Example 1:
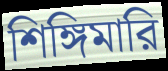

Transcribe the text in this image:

শিঙ্গিমারি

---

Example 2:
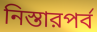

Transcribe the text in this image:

নিস্তারপর্ব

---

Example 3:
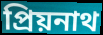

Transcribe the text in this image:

প্রিয়নাথ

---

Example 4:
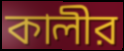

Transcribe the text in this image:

কালীর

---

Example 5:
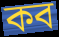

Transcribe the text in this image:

কব